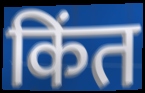
किंत